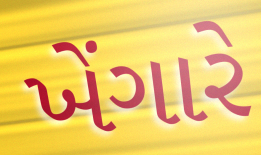
ખેંગારે